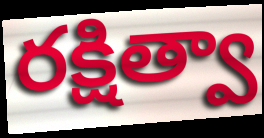
రక్షిత్వా